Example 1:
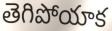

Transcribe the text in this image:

తెగిపోయాక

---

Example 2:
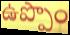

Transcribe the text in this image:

ఉప్పొం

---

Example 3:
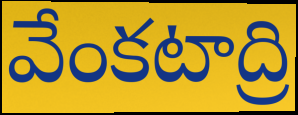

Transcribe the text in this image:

వేంకటాద్రి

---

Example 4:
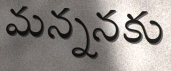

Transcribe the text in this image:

మన్ననకు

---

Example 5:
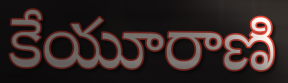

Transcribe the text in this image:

కేయూరాణి